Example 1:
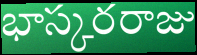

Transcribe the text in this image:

భాస్కరరాజు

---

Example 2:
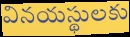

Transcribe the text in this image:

వినయస్థులకు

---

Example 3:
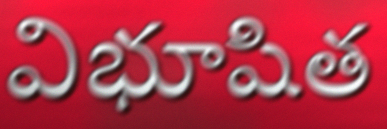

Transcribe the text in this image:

విభూషిత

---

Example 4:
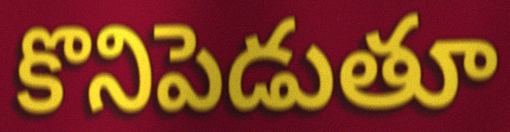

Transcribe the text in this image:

కొనిపెడుతూ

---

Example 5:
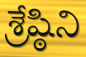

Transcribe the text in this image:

శ్రేష్ఠిని